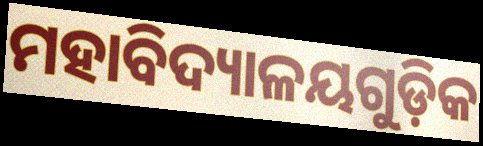
ମହାବିଦ୍ୟାଳୟଗୁଡ଼ିକ